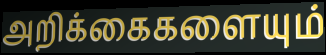
அறிக்கைகளையும்